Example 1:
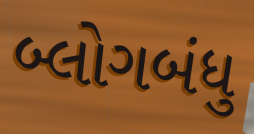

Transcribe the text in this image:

બ્લોગબંધુ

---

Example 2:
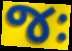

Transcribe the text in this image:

જઃ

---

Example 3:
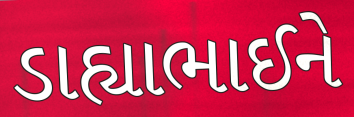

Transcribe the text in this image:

ડાહ્યાભાઈને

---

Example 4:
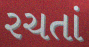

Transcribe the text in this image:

રચતાં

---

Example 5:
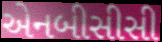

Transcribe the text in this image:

એનબીસીસી